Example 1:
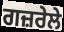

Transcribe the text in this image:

ਗਜ਼ਰੇਲੇ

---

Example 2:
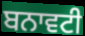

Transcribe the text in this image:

ਬਨਾਵਟੀ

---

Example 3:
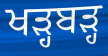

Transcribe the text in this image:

ਖੜ੍ਹਬੜ੍ਹ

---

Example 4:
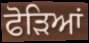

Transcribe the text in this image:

ਫੋੜਿਆਂ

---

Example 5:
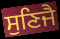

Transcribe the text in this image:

ਸੁਣਿਜੈ